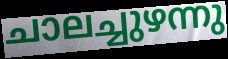
ചാലച്ചുഴന്നു